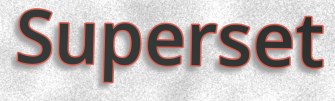
Superset